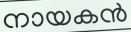
നായകൻ